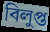
বিলুপ্ত